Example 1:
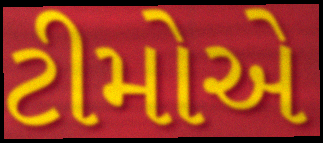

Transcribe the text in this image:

ટીમોએ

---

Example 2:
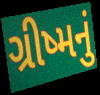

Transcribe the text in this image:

ગ્રીષ્મનું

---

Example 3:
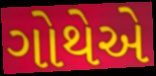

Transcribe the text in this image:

ગોથેએ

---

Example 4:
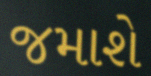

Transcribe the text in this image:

જમાશે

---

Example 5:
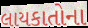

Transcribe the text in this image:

લાયકાતોના